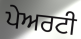
ਪੇਅਰਟੀ